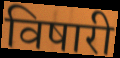
विषारी